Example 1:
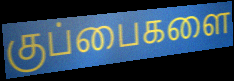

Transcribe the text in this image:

குப்பைகளை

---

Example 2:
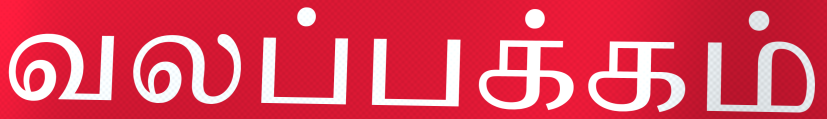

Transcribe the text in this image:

வலப்பக்கம்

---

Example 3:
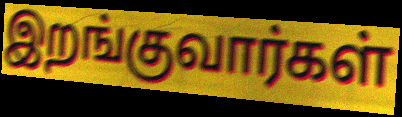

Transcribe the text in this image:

இறங்குவார்கள்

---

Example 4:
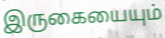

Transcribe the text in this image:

இருகையையும்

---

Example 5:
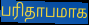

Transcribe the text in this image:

பரிதாபமாக